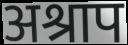
अश्राप